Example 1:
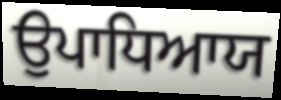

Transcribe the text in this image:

ਉਪਾਧਿਆਯ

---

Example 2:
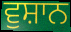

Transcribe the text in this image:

ਵੁਸ਼ਾਨ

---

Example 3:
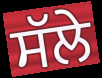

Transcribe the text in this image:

ਸੱਲੇ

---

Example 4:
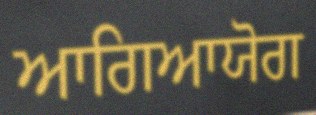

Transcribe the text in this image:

ਆਗਿਆਯੋਗ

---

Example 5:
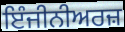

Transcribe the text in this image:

ਇੰਜੀਨੀਅਰਜ਼